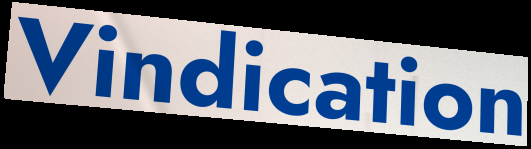
Vindication